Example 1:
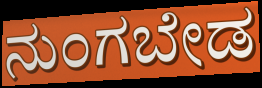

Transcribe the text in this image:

ನುಂಗಬೇಡ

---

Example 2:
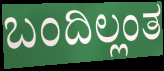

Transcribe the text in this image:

ಬಂದಿಲ್ಲಂತ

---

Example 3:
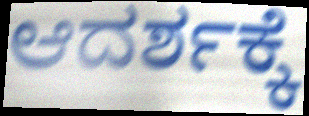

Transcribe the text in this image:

ಆದರ್ಶಕ್ಕೆ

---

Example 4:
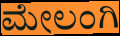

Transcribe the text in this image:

ಮೇಲಂಗಿ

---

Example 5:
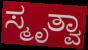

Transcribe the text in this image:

ಸ್ಮೃತ್ವಾ